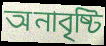
অনাবৃষ্টি